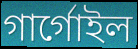
গাৰ্গোইল